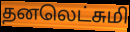
தனலெட்சுமி